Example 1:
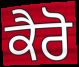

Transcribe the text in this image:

ਕੈਰੋ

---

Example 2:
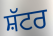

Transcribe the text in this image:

ਸ਼ੱਟਰ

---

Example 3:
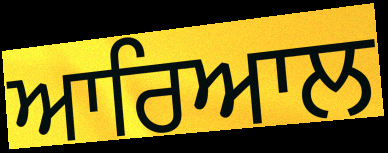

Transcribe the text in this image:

ਆਰਿਆਲ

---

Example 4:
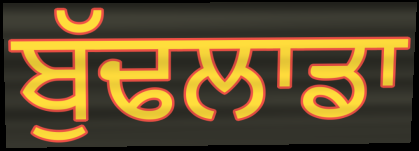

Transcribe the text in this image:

ਬੁੱਢਲਾਡਾ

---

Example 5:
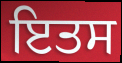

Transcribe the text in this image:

ਇਤਸ